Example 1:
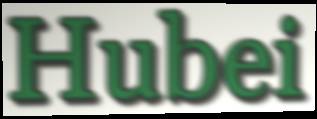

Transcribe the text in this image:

Hubei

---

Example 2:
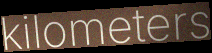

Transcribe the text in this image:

kilometers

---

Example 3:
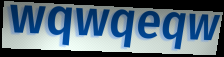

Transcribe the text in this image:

wqwqeqw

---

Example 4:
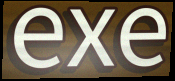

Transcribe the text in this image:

exe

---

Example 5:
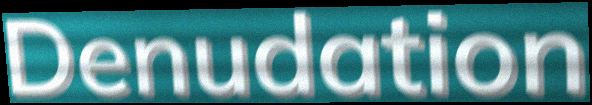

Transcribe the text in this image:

Denudation